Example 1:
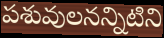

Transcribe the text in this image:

పశువులనన్నిటిని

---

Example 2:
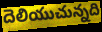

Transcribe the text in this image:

దెలియుచున్నది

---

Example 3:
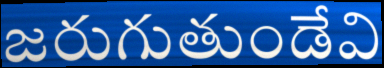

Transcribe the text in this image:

జరుగుతుండేవి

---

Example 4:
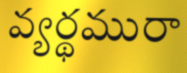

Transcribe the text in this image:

వ్యర్థమురా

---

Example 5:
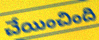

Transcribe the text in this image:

చేయించింది